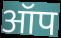
ऑप